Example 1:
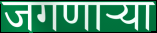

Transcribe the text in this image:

जगणाऱ्या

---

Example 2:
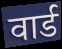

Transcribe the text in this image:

वार्ड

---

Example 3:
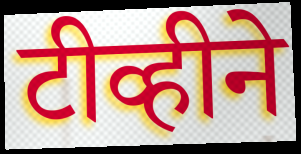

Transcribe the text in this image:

टीव्हीने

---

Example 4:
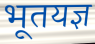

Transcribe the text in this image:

भूतयज्ञ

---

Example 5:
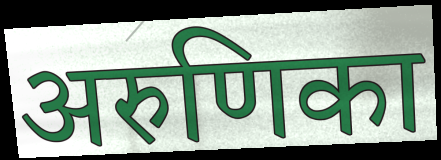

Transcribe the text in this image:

अरुणिका